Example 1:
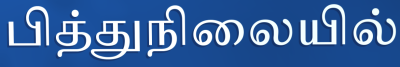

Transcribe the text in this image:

பித்துநிலையில்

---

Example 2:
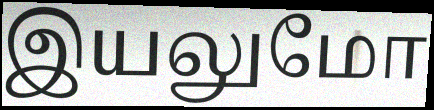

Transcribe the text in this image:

இயலுமோ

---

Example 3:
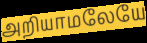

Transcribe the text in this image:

அறியாமலேயே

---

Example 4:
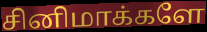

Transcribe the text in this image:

சினிமாக்களே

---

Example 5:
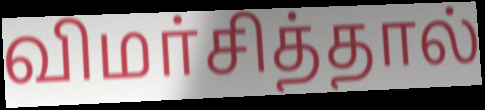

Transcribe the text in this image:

விமர்சித்தால்